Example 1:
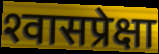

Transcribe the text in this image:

श्वासप्रेक्षा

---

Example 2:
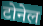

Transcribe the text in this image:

टोनेल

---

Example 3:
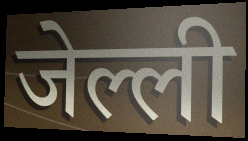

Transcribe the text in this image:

जेल्ली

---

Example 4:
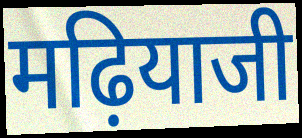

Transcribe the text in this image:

मढ़ियाजी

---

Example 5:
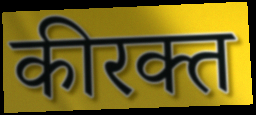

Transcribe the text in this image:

कीरक्त